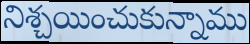
నిశ్చయించుకున్నాము